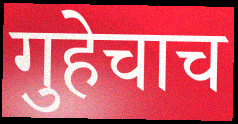
गुहेचाच